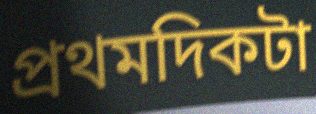
প্রথমদিকটা